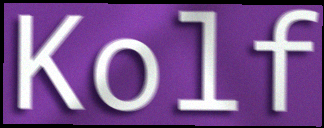
Kolf